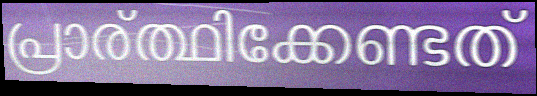
പ്രാര്ത്ഥിക്കേണ്ടത്